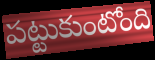
పట్టుకుంటోంది